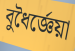
বুধৈর্জ্ঞেয়া